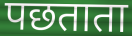
पछताता